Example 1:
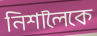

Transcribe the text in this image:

নিশালৈকে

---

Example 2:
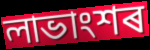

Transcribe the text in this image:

লাভাংশৰ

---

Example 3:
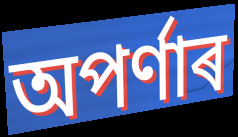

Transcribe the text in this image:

অপৰ্ণাৰ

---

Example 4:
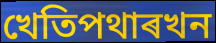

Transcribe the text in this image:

খেতিপথাৰখন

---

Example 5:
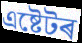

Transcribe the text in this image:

এষ্টেটৰ